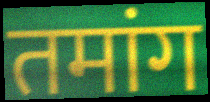
तमांग